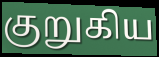
குறுகிய